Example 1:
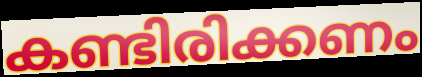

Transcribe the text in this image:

കണ്ടിരിക്കണം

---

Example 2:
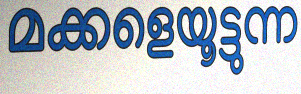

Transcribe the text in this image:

മക്കളെയൂട്ടുന്ന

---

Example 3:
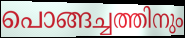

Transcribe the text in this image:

പൊങ്ങച്ചത്തിനും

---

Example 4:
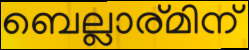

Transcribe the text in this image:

ബെല്ലാര്മിന്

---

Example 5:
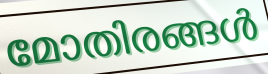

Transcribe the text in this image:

മോതിരങ്ങൾ